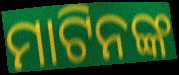
ମାଟିନଙ୍କ